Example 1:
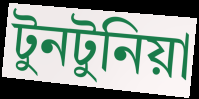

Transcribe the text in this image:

টুনটুনিয়া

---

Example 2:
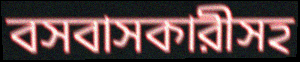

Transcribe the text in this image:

বসবাসকারীসহ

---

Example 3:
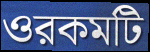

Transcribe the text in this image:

ওরকমটি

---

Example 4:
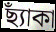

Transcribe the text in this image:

ছ্যাঁকা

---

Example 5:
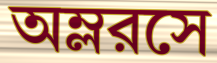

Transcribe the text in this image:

অম্লরসে